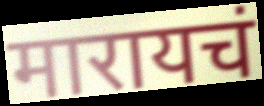
मारायचं